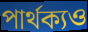
পার্থক্যও